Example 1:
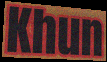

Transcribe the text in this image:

Khun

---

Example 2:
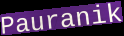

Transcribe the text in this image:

Pauranik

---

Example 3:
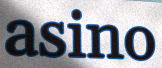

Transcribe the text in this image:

asino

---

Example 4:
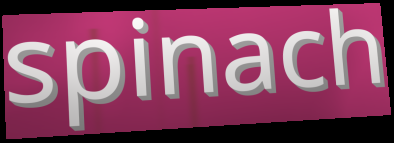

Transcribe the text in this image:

spinach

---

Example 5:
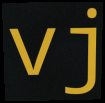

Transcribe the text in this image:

vj